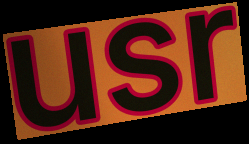
usr